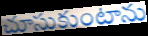
చూసుకుంటాను